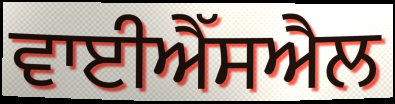
ਵਾਈਐੱਸਐਲ